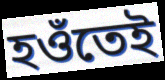
হওঁতেই